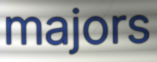
majors